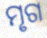
ମୃଗ